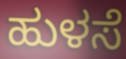
ಹುಳಸೆ